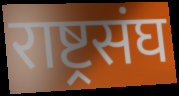
राष्ट्रसंघ